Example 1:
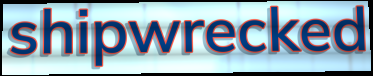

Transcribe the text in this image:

shipwrecked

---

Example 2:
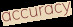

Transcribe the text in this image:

accuracy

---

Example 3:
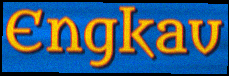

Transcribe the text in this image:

Engkau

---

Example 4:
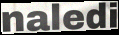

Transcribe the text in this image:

naledi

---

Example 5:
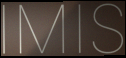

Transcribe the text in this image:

IMIS